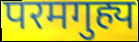
परमगुह्य